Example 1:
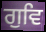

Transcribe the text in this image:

ਗੁਵਿ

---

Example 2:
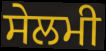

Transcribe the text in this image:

ਸੇਲਮੀ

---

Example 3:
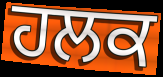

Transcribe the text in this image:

ਹਲਕ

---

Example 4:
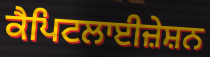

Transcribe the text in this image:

ਕੈਪਿਟਲਾਈਜ਼ੇਸ਼ਨ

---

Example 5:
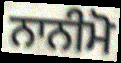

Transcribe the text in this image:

ਨਾਨੀਮੋ